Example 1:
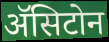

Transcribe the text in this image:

ॲसिटोन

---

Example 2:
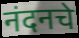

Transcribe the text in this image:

नंदनचे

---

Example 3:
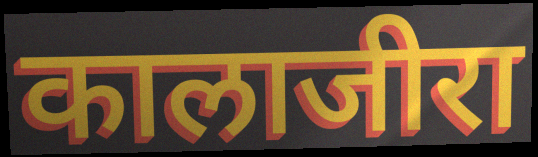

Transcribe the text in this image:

कालाजीरा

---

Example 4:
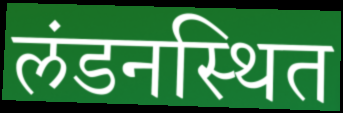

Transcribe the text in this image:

लंडनस्थित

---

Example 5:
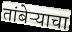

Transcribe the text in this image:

तांबेऱ्याचा